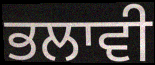
ਭਲਾਵੀ